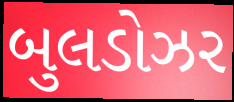
બુલડોઝર